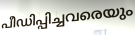
പീഡിപ്പിച്ചവരെയും